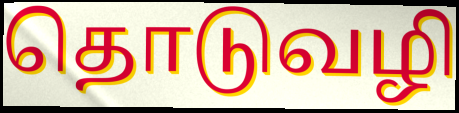
தொடுவழி